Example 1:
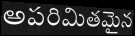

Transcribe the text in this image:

అపరిమితమైన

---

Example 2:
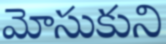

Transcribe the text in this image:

మోసుకుని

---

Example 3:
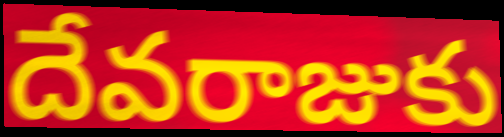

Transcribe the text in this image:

దేవరాజుకు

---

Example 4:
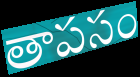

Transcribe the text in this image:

తాపసం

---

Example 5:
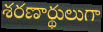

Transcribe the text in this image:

శరణార్థులుగా